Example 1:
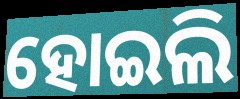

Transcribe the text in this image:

ହୋଇଲି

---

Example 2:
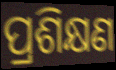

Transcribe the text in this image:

ପ୍ରଶିକ୍ଷଣ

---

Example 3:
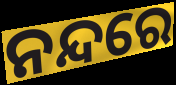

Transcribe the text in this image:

ନନ୍ଦରେ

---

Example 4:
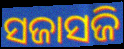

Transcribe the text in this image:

ସଜାସଜି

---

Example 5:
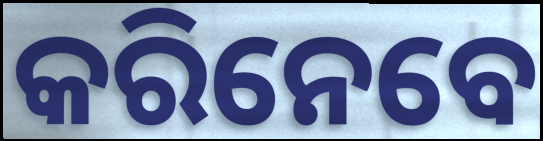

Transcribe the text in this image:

କରିନେବେ